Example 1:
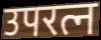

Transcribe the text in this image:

उपरत्न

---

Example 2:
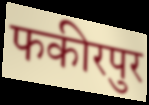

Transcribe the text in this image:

फकीरपुर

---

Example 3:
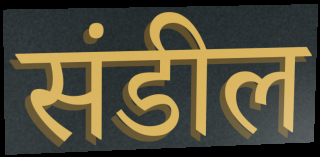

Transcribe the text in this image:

संडील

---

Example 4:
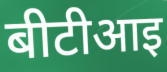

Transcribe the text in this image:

बीटीआइ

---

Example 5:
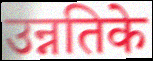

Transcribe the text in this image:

उन्नतिके